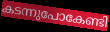
കടന്നുപോകേണ്ടി